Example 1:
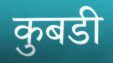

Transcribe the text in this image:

कुबडी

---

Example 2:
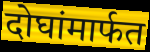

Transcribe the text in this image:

दोघांमार्फत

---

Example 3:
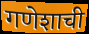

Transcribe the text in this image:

गणेशाची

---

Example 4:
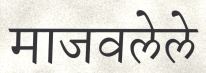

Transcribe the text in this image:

माजवलेले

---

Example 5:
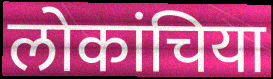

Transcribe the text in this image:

लोकांचिया